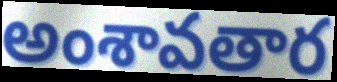
అంశావతార